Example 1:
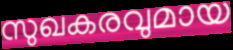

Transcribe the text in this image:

സുഖകരവുമായ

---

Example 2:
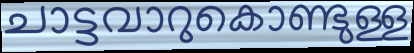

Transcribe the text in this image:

ചാട്ടവാറുകൊണ്ടുള്ള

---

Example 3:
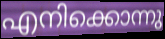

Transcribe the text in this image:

എനിക്കൊന്നു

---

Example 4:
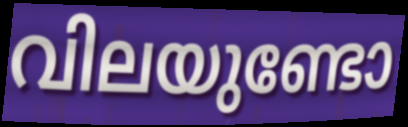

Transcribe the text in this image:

വിലയുണ്ടോ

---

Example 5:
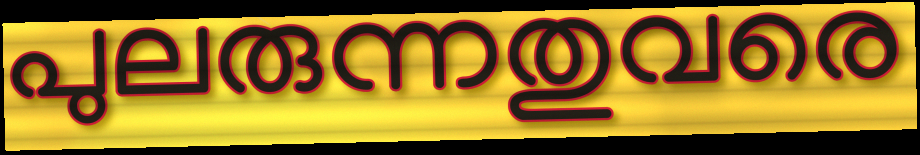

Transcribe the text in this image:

പുലരുന്നതുവരെ